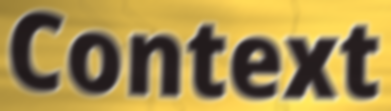
Context